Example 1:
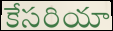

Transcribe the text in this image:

కేసరియా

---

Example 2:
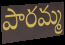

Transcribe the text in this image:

పారమ్మ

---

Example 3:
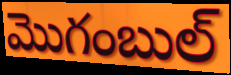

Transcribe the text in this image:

మొగంబుల్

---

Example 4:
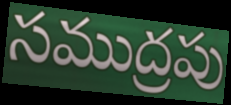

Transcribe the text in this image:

సముద్రపు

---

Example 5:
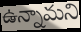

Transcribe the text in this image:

ఉన్నామని